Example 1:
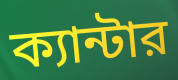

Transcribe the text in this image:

ক্যান্টার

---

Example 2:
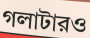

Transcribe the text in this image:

গলাটারও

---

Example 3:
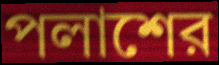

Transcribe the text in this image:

পলাশের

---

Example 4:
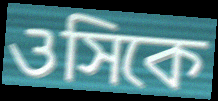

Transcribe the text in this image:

ওসিকে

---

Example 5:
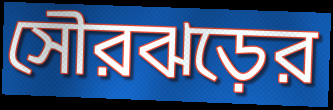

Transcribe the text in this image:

সৌরঝড়ের